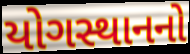
યોગસ્થાનનો